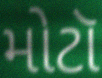
મોટૉ